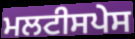
ਮਲਟੀਸਪੇਸ